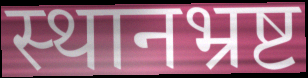
स्थानभ्रष्ट